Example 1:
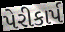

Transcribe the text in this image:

પેરીકાર્પ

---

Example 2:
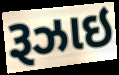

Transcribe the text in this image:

રૂઝાઇ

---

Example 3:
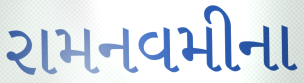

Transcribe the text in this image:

રામનવમીના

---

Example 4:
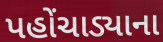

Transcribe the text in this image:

પહોંચાડ્યાના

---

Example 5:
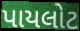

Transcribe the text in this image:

પાયલોટ